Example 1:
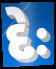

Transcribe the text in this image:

દેઃ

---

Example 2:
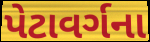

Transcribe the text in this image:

પેટાવર્ગના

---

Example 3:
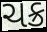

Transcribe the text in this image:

ચક્ર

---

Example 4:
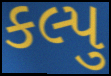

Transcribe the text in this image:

કલ્પુ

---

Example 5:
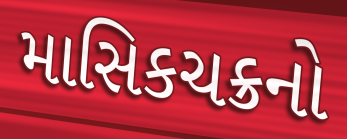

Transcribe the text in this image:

માસિકચક્રનો